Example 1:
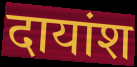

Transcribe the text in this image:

दायांश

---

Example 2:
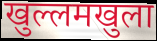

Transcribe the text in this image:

खुल्लमखुला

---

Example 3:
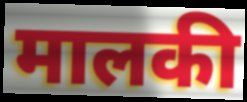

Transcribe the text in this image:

मालकी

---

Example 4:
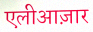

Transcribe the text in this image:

एलीआज़ार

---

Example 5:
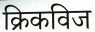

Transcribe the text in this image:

क्रिकविज